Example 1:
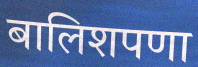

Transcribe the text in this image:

बालिशपणा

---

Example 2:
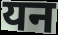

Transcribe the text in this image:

यन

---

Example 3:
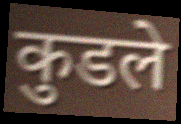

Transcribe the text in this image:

कुडले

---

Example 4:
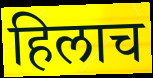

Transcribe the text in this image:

हिलाच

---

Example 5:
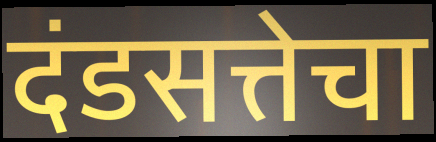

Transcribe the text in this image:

दंडसत्तेचा